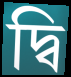
দ্বি